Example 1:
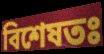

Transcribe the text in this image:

বিশেষতঃ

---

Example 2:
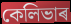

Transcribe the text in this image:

কেলিভাৰ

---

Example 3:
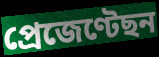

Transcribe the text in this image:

প্ৰেজেণ্টেছন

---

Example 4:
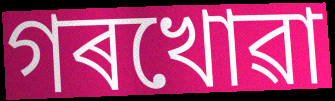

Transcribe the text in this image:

গৰখোৱা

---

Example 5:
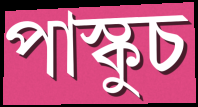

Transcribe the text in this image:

পাস্কুচ